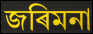
জৰিমনা